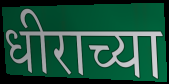
धीराच्या